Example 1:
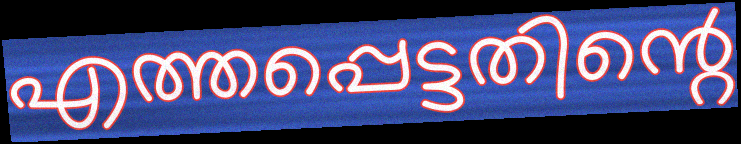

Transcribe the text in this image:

എത്തപ്പെട്ടതിന്റെ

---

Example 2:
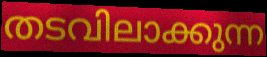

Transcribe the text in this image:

തടവിലാക്കുന്ന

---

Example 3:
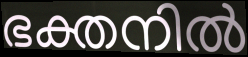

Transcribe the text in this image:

ഭക്തനിൽ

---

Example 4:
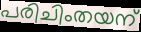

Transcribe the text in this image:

പരിചിംതയന്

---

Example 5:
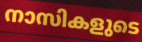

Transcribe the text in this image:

നാസികളുടെ